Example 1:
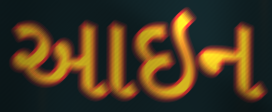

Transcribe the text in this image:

આઇન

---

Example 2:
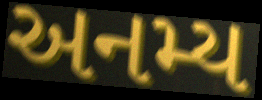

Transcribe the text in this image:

અનમ્ય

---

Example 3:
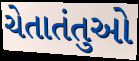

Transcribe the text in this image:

ચેતાતંતુઓ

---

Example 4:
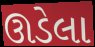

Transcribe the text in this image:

ઊડેલા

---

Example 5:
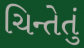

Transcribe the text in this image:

ચિન્તેતું